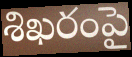
శిఖరంపై